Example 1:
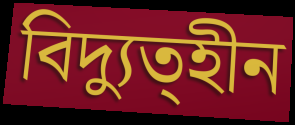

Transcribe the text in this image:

বিদ্যুত্হীন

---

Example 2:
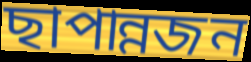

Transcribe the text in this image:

ছাপান্নজন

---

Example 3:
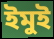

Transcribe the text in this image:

ইমুই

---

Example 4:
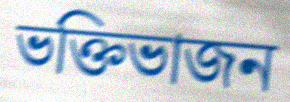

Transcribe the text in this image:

ভক্তিভাজন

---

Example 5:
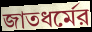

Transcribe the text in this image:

জাতধর্মের